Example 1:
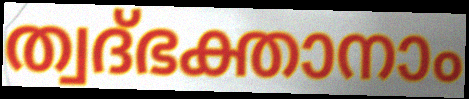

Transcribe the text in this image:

ത്വദ്ഭക്താനാം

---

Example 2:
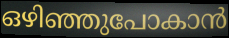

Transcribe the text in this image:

ഒഴിഞ്ഞുപോകാൻ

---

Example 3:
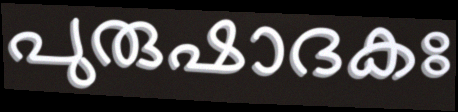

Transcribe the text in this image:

പുരുഷാദകഃ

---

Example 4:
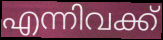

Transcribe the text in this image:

എന്നിവക്ക്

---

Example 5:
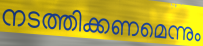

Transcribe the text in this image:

നടത്തിക്കണമെന്നും